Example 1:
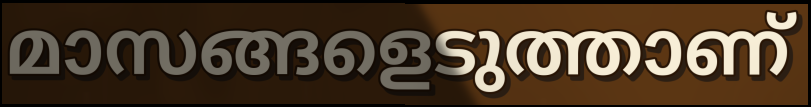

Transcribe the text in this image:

മാസങ്ങളെടുത്താണ്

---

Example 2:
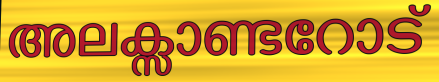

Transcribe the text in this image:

അലക്സാണ്ടറോട്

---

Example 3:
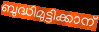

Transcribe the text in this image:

ബുദ്ധിമുട്ടിക്കാന്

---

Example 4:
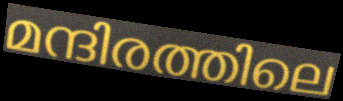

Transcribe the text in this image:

മന്ദിരത്തിലെ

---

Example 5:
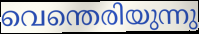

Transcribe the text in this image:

വെന്തെരിയുന്നു